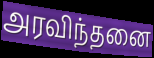
அரவிந்தனை